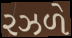
રઝળે